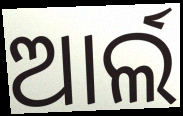
ଆର୍ଲ